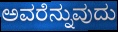
ಅವರೆನ್ನುವುದು